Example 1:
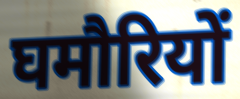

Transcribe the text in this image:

घमौरियों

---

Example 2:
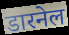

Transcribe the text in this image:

डारनेल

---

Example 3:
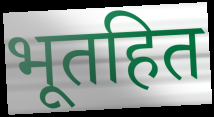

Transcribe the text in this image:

भूतहित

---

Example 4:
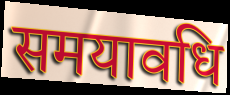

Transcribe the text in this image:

समयावधि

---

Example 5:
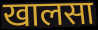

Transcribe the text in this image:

खालसा